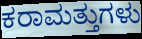
ಕರಾಮತ್ತುಗಳು